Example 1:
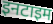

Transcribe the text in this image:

इनटाइम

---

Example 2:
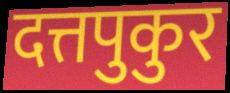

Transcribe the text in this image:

दत्तपुकुर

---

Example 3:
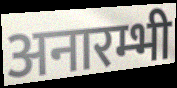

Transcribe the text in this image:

अनारम्भी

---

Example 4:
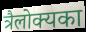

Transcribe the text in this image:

त्रैलोक्यका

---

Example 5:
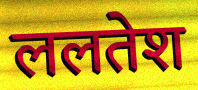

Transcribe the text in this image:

ललतेश